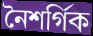
নৈশৰ্গিক